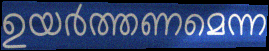
ഉയർത്തണമെന്ന